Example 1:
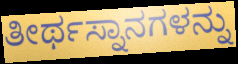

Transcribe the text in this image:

ತೀರ್ಥಸ್ನಾನಗಳನ್ನು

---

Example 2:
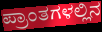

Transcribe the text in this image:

ಪ್ರಾಂತಗಳಲ್ಲಿನ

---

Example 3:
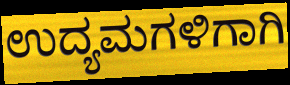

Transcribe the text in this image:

ಉದ್ಯಮಗಳಿಗಾಗಿ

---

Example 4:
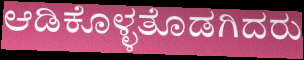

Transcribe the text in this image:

ಆಡಿಕೊಳ್ಳತೊಡಗಿದರು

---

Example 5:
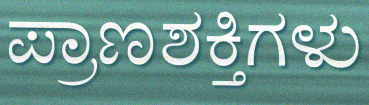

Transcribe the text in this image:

ಪ್ರಾಣಶಕ್ತಿಗಳು